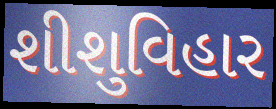
શીશુવિહાર